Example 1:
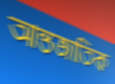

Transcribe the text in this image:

আন্তজাতিক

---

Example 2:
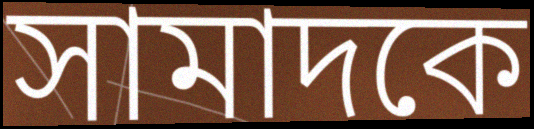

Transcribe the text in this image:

সামাদকে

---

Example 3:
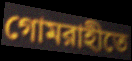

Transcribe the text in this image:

গোমরাহীতে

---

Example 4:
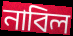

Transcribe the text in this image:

নাবিল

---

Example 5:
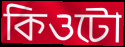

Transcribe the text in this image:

কিওটো